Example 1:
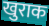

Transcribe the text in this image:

खुराक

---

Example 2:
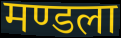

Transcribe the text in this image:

मण्डला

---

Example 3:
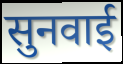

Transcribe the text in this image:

सुनवाई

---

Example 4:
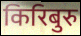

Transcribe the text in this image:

किरिबुरु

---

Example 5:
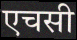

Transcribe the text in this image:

एचसी